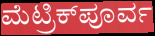
ಮೆಟ್ರಿಕ್‌ಪೂರ್ವ